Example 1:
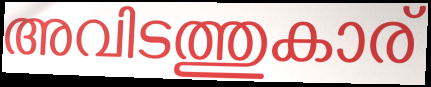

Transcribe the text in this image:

അവിടത്തുകാര്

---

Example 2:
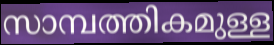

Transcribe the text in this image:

സാമ്പത്തികമുള്ള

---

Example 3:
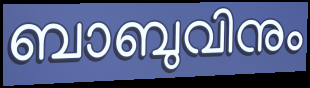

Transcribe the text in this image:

ബാബുവിനും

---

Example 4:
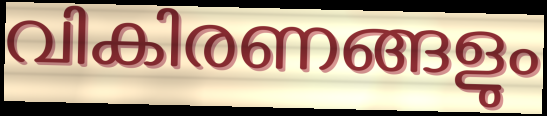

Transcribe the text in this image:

വികിരണങ്ങളും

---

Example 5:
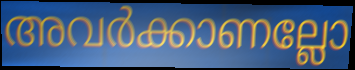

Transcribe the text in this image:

അവർക്കാണല്ലോ